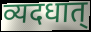
व्यदधात्